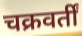
चक्रवर्तीं